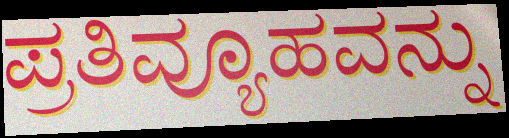
ಪ್ರತಿವ್ಯೂಹವನ್ನು